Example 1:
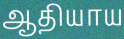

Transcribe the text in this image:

ஆதியாய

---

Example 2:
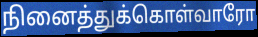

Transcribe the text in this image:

நினைத்துக்கொள்வாரோ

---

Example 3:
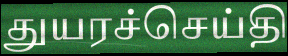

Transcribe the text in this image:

துயரச்செய்தி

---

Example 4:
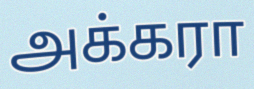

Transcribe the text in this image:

அக்கரா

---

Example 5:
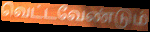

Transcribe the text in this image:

வெட்டவேண்டும்